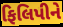
ફિલિપીને